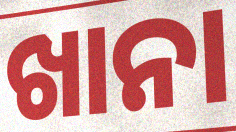
ଖାନା